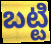
బట్టి